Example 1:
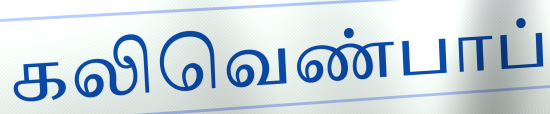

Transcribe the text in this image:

கலிவெண்பாப்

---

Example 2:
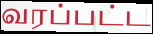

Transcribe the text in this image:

வரப்பட்ட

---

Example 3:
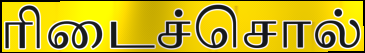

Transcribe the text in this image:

ரிடைச்சொல்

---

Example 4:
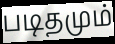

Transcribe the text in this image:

படிதமும்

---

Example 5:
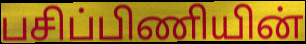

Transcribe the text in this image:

பசிப்பிணியின்